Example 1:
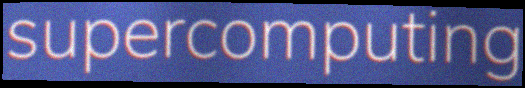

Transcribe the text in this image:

supercomputing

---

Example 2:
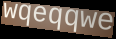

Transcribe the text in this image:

wqeqqwe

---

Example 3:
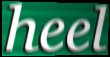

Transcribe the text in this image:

heel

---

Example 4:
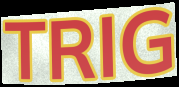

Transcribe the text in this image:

TRIG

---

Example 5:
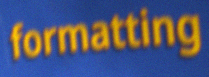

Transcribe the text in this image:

formatting